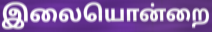
இலையொன்றை